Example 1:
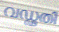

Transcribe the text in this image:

വഡ്ഢതി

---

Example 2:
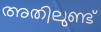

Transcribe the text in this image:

അതിലുണ്ട്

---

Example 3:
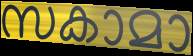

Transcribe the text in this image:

സകാമാ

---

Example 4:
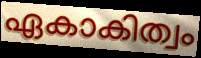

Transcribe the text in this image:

ഏകാകിത്വം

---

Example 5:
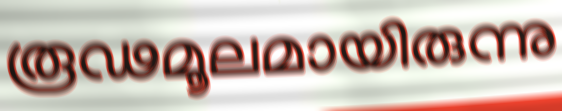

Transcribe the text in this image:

രൂഢമൂലമായിരുന്നു